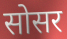
सोसर